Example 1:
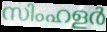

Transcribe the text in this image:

സിംഹളർ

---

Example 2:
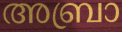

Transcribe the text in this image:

അബ്രാ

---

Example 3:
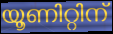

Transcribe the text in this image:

യൂണിറ്റിന്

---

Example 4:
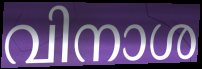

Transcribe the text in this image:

വിനാശ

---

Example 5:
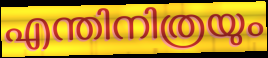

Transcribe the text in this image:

എന്തിനിത്രയും